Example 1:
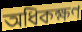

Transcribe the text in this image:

অধিকক্ষণ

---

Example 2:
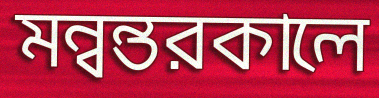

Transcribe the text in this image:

মন্বন্তরকালে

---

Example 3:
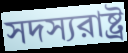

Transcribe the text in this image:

সদস্যরাষ্ট্র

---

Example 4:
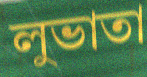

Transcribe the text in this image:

লুভাতা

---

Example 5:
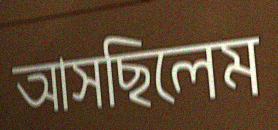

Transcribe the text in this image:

আসছিলেম